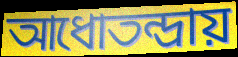
আধোতন্দ্রায়